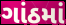
ગાંઠમાં